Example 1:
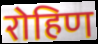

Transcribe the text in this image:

रोहिण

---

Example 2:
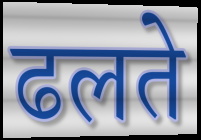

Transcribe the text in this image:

ढलते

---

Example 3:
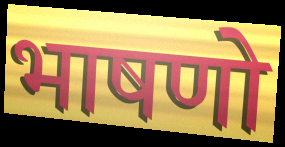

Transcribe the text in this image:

भाषणो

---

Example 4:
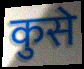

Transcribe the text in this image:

कुसे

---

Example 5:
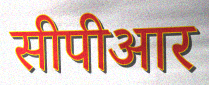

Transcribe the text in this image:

सीपीआर